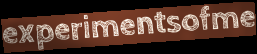
experimentsofme